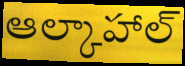
ఆల్కాహాల్